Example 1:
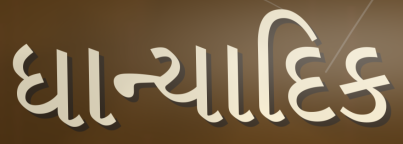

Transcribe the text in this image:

ધાન્યાદિક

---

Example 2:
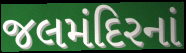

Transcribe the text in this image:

જલમંદિરનાં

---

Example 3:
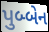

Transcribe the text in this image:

પુબ્બેન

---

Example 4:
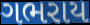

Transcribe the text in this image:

ગભરાય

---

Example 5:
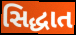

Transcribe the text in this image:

સિદ્ધાત